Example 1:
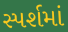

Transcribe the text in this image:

સ્પર્શમાં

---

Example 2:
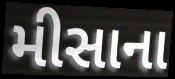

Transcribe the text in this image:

મીસાના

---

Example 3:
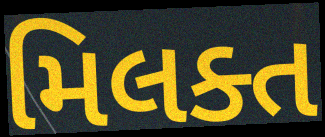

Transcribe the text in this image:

મિલક્ત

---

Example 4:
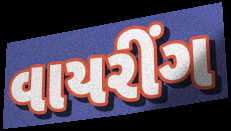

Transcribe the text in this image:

વાયરીંગ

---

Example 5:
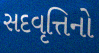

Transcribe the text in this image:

સદવૃત્તિનો